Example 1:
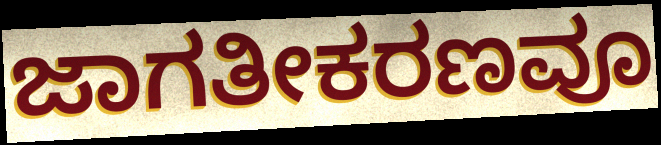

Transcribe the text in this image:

ಜಾಗತೀಕರಣವೂ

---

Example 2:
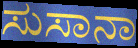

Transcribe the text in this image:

ಸುಸಾನಾ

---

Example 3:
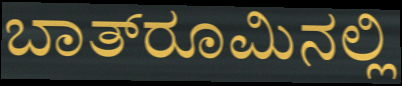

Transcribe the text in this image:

ಬಾತ್‌ರೂಮಿನಲ್ಲಿ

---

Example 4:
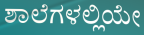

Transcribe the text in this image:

ಶಾಲೆಗಳಲ್ಲಿಯೇ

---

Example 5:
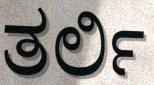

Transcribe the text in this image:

ತರ್ಲಿ